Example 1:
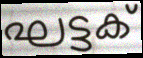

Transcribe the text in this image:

ഘട്ടക്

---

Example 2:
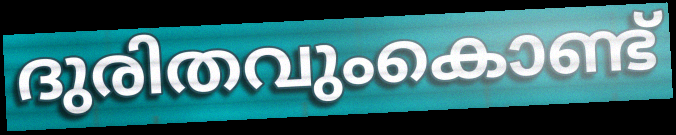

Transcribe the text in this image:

ദുരിതവുംകൊണ്ട്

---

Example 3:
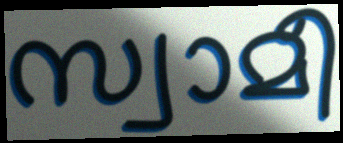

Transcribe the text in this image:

സ്വാമീ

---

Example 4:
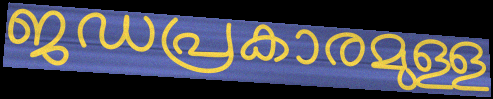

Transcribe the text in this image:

ജഡപ്രകാരമുള്ള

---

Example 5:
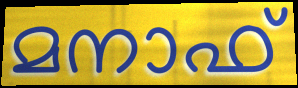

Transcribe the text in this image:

മനാഫ്